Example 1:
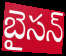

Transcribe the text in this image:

బైసన్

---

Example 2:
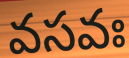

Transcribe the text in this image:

వసవః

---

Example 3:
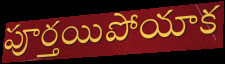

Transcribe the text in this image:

పూర్తయిపోయాక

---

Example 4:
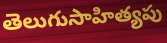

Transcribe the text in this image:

తెలుగుసాహిత్యపు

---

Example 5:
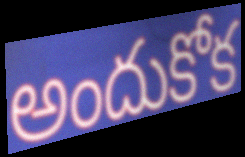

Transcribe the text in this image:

అందుకోక